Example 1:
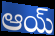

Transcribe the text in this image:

ఆయ్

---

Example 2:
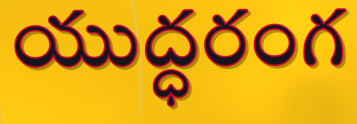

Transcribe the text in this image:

యుద్ధరంగ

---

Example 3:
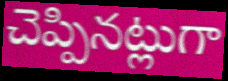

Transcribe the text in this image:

చెప్పినట్లుగా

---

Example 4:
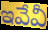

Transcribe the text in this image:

ఇవేవీ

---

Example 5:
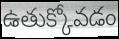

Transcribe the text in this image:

ఉతుక్కోవడం